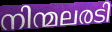
നിന്മലരടി